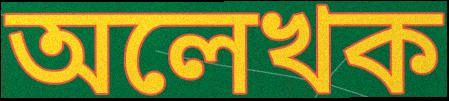
অলেখক